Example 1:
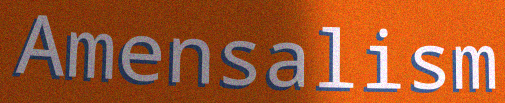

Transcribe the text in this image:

Amensalism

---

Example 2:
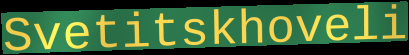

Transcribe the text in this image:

Svetitskhoveli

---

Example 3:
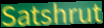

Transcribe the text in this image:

Satshrut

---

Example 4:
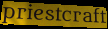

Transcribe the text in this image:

priestcraft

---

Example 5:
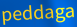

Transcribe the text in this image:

peddaga